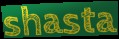
shasta